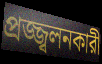
প্রজ্জ্বলনকারী